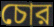
চোর